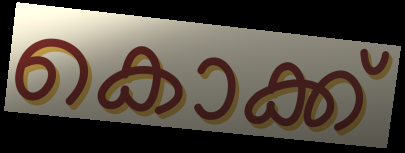
കൊക്ക്